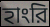
হাংরি